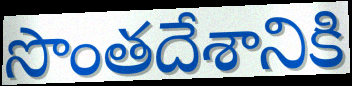
సొంతదేశానికి